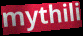
mythili